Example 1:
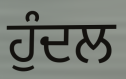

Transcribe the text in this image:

ਹੁੰਦਲ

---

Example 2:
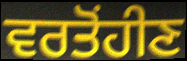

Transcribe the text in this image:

ਵਰਤੋਂਹੀਣ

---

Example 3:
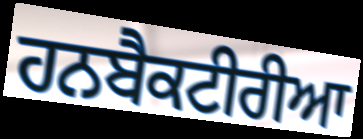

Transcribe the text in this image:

ਹਨਬੈਕਟੀਰੀਆ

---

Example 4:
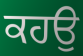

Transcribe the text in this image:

ਕਹਉ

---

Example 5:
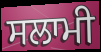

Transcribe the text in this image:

ਸਲਾਮੀ